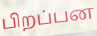
பிறப்பன